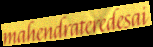
mahendrateredesai